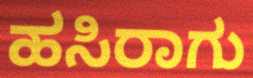
ಹಸಿರಾಗು